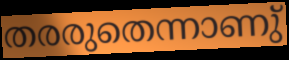
തരരുതെന്നാണു്